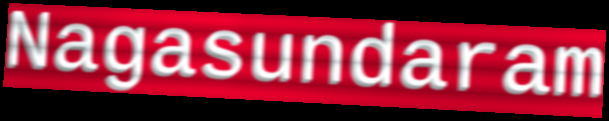
Nagasundaram